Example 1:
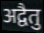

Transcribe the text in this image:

अद्वैतु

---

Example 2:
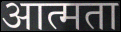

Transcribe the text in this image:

आत्मता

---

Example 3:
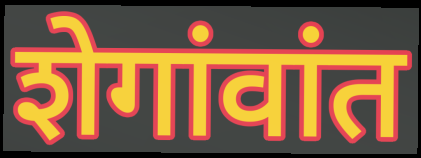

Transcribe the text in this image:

शेगांवांत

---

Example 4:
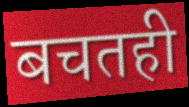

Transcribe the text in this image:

बचतही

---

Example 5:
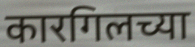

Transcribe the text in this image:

कारगिलच्या